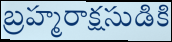
బ్రహ్మరాక్షసుడికి